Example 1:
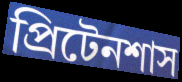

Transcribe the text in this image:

প্রিটেনশাস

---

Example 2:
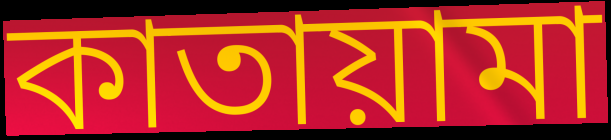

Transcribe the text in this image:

কাতায়ামা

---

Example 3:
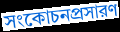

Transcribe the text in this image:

সংকোচনপ্রসারণ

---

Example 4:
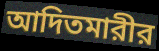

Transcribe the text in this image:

আদিতমারীর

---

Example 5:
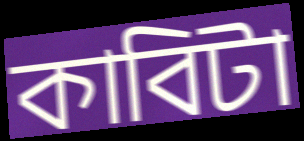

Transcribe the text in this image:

কাবিটা